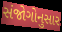
સંજોગોનુસાર